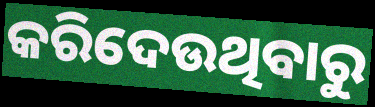
କରିଦେଉଥିବାରୁ